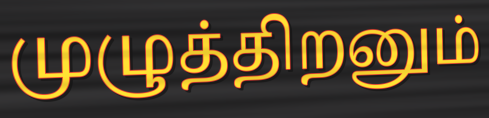
முழுத்திறனும்